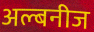
अल्बनीज